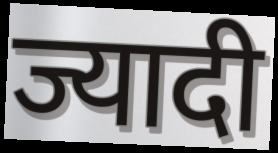
ज्यादी